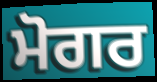
ਮੋਗਰ